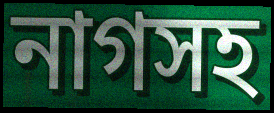
নাগসহ